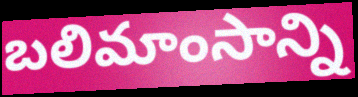
బలిమాంసాన్ని